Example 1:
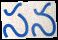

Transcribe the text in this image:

సన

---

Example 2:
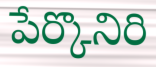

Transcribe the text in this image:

పేర్కొనిరి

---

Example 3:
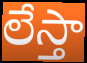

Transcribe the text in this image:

లేస్తా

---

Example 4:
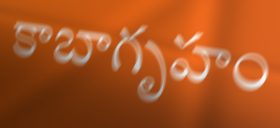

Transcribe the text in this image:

కాబాగృహం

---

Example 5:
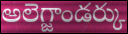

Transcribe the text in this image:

అలెగ్జాండర్కు